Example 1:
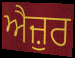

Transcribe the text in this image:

ਐਜ਼ੁਰ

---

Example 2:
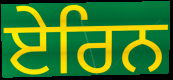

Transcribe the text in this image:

ਏਰਿਨ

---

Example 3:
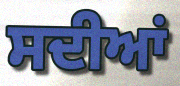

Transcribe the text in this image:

ਸਦੀਆਂ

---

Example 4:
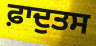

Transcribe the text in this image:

ਫ਼ਾਦੁਤਸ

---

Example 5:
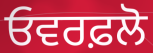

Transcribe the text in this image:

ਓਵਰਫ਼ਲੋ